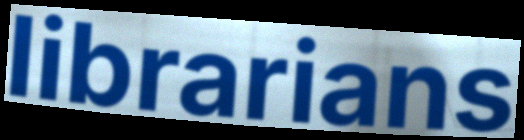
librarians